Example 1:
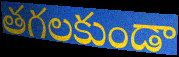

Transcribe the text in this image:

తగలకుండా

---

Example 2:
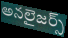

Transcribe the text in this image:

అనలైజర్స్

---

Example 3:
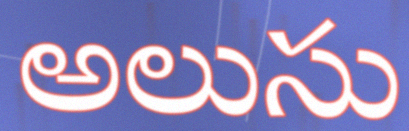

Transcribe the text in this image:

అలుసు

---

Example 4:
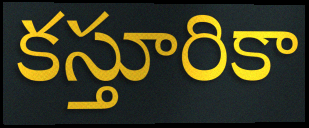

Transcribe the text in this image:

కస్తూరికా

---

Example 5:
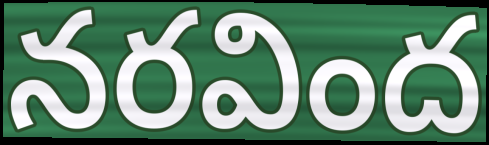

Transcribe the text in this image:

నరవింద